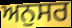
ਅਨੁਸਰ